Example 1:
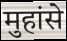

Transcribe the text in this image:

मुहांसे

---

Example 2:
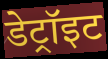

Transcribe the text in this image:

डेट्रॉइट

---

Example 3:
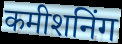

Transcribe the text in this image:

कमीशनिंग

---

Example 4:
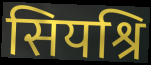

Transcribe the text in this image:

सियश्रि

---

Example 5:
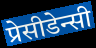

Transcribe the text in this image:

प्रेसीडेन्सी